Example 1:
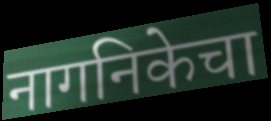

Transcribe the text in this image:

नागनिकेचा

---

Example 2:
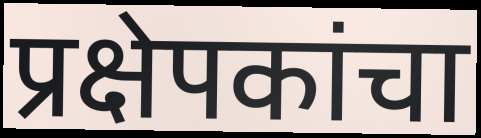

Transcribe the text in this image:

प्रक्षेपकांचा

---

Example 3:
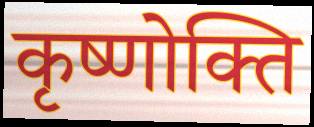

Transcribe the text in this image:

कृष्णोक्ति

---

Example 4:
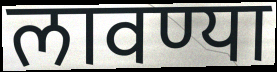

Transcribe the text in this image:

लावण्या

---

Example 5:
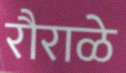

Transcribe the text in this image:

रौराळे